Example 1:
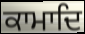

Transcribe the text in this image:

ਕਾਮਾਦਿ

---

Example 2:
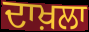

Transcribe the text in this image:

ਦਾਖ਼ਲਾ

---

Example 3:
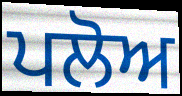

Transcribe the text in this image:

ਪਲੋਅ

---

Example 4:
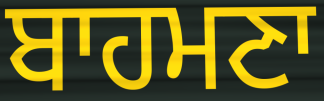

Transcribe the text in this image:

ਬਾਹਮਣਾ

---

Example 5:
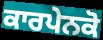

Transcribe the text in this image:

ਕਾਰਪੇਨਕੋ